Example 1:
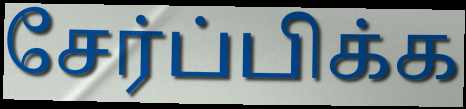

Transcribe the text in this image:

சேர்ப்பிக்க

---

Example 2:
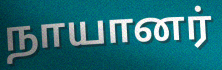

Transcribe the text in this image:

நாயானர்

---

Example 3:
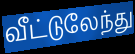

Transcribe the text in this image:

வீட்டுலேந்து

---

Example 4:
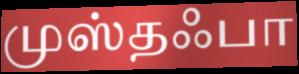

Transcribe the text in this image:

முஸ்தஃபா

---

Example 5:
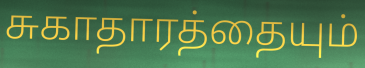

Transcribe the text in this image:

சுகாதாரத்தையும்